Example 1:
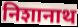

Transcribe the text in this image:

निशानाथ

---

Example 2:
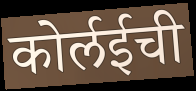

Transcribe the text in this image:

कोर्लईची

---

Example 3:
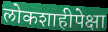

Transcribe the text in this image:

लोकशाहीपेक्षा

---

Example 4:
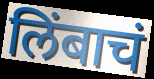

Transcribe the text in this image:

लिंबाचं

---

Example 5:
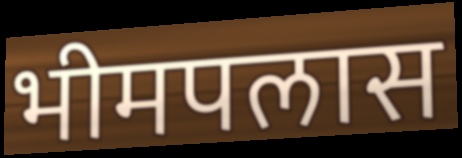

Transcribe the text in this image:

भीमपलास